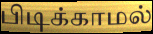
பிடிக்காமல்